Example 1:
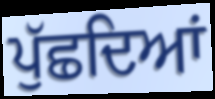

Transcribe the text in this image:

ਪੁੱਛਦਿਆਂ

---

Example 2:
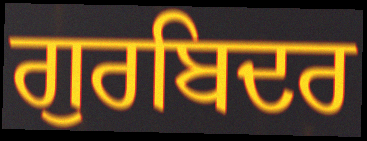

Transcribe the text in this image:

ਗੁਰਬਿਦਰ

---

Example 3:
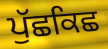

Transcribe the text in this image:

ਪੁੱਛਕਿਛ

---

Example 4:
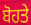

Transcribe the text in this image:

ਬੋਹਤੇ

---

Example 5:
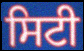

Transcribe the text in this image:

ਸਿਟੀ